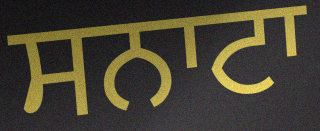
ਸਨਾਟਾ